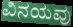
ವಿನಯವು